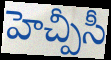
హెచ్పీసీ